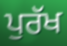
ਪੁਰੱਖ